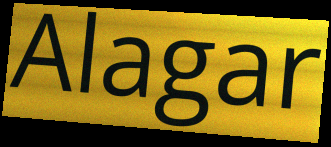
Alagar